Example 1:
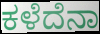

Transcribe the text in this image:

ಕಳೆದೆನಾ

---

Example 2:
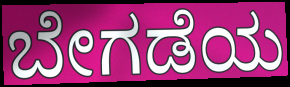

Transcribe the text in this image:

ಬೇಗಡೆಯ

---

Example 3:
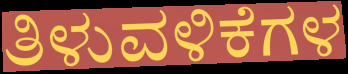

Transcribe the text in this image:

ತಿಳುವಳಿಕೆಗಳ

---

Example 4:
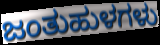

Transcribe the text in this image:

ಜಂತುಹುಳಗಳು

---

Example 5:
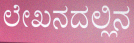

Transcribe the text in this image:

ಲೇಖನದಲ್ಲಿನ